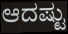
ಆದಷ್ಟು